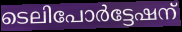
ടെലിപോർട്ടേഷന്